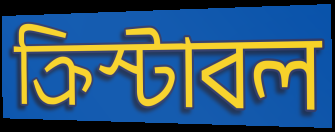
ক্রিস্টাবল